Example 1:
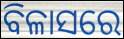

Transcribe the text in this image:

ବିଳାସରେ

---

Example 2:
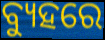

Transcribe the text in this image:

ବ୍ୟୁହରେ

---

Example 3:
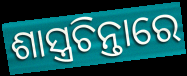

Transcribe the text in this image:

ଶାସ୍ତ୍ରଚିନ୍ତାରେ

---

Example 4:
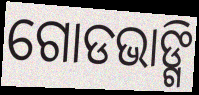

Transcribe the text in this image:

ଗୋଡଭାଙ୍ଗି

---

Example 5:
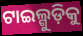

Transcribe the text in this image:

ଟାଇଲ୍ଗୁଡ଼ିକୁ